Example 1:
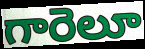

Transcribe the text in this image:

గారెలూ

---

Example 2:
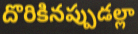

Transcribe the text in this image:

దొరికినప్పుడల్లా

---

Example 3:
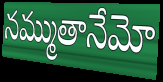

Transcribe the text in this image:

నమ్ముతానేమో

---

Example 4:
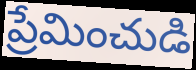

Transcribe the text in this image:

ప్రేమించుడి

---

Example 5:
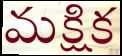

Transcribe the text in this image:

మక్షిక